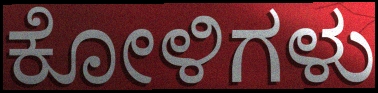
ಕೋಳಿಗಳು